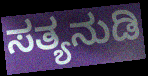
ಸತ್ಯನುಡಿ